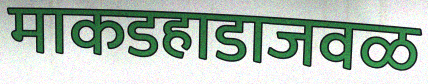
माकडहाडाजवळ